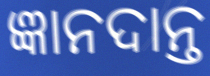
ଜ୍ଞାନଦାନ୍ତ